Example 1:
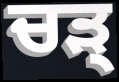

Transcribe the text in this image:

ਚੜ੍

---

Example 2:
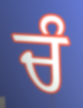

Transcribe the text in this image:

ਚੰ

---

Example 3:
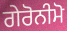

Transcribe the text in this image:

ਗੇਰੋਨੀਮੋ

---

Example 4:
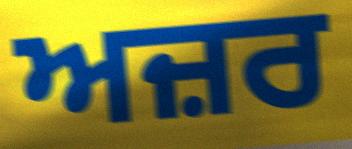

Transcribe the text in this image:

ਅਜ਼ਰ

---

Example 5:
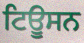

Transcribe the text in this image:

ਟਿਊਸਨ